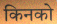
किनको